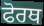
ਫੋਰਥ